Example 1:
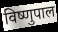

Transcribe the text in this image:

विष्णुपाल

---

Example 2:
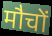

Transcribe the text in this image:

मौचों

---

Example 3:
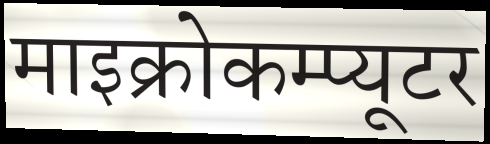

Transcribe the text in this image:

माइक्रोकम्प्यूटर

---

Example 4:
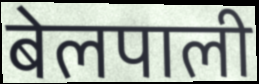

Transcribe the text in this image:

बेलपाली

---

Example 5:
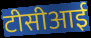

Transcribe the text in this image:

टीसीआई